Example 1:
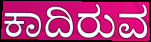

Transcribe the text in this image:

ಕಾದಿರುವ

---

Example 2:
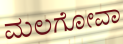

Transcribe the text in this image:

ಮಲಗೋವಾ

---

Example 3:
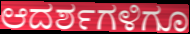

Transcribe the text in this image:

ಆದರ್ಶಗಳಿಗೂ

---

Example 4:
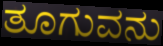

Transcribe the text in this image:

ತೂಗುವನು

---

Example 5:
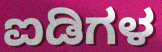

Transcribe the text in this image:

ಐಡಿಗಳ